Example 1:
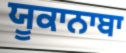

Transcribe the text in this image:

ਯੂਕਾਨਾਬਾ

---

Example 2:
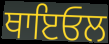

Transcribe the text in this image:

ਥਾਇਓਲ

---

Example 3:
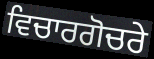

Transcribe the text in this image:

ਵਿਚਾਰਗੋਚਰੇ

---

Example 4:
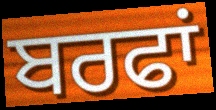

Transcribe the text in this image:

ਬਰਫਾਂ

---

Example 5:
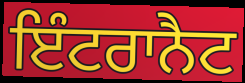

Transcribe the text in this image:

ਇੰਟਰਾਨੈਟ